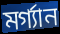
মর্গ্যান